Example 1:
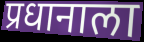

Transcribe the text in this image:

प्रधानाला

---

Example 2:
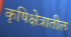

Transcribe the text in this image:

कृषिक्षेत्रातील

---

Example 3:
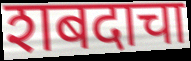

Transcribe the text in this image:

शबदाचा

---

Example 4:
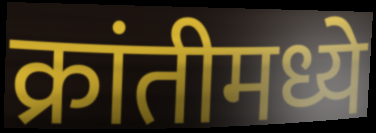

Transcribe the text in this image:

क्रांतीमध्ये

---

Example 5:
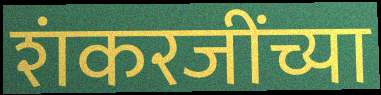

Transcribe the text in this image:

शंकरजींच्या